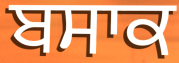
ਬਸਾਕ